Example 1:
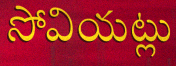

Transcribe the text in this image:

సోవియట్లు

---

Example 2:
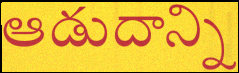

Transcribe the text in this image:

ఆడుదాన్ని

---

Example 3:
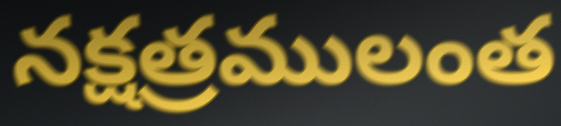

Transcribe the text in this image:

నక్షత్రములంత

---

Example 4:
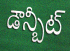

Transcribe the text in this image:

డౌన్బీట్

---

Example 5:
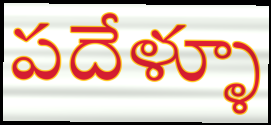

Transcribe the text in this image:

పదేళ్ళూ